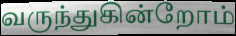
வருந்துகின்றோம்